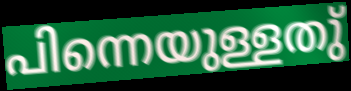
പിന്നെയുള്ളതു്